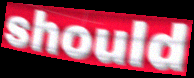
should